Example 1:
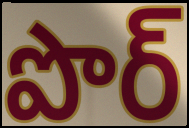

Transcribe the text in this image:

పొర్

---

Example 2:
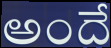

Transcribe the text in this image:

అందే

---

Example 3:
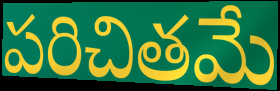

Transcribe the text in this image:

పరిచితమే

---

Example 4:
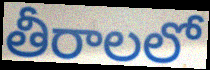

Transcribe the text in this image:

తీరాలలో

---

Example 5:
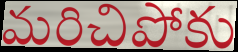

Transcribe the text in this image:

మరిచిపోకు